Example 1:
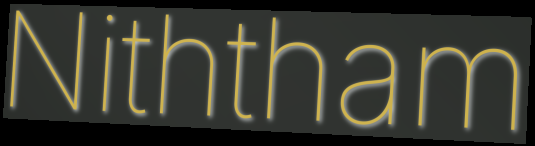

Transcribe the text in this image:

Niththam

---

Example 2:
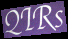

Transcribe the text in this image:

QIRs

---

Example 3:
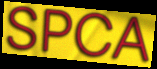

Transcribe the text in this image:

SPCA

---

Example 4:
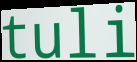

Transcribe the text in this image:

tuli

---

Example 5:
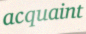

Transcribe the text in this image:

acquaint